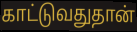
காட்டுவதுதான்